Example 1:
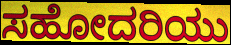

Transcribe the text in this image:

ಸಹೋದರಿಯು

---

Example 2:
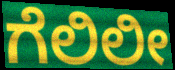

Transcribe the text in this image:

ಗೆಲಿಲೀ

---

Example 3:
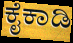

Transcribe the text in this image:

ಕೈಕಾಡಿ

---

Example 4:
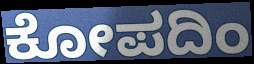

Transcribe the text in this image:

ಕೋಪದಿಂ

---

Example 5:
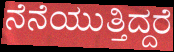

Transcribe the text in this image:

ನೆನೆಯುತ್ತಿದ್ದರೆ